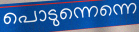
പൊടുന്നെന്നെ